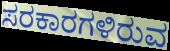
ಸರಕಾರಗಳಿರುವ